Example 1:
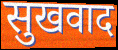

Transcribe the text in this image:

सुखवाद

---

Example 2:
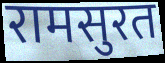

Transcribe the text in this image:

रामसुरत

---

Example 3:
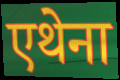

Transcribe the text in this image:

एथेना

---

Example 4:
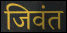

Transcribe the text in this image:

जिवंत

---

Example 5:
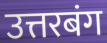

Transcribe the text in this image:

उत्तरबंग